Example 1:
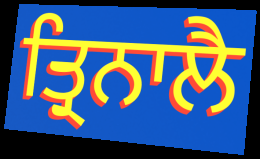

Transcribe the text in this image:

ਤ੍ਰਿਨਾਲੈ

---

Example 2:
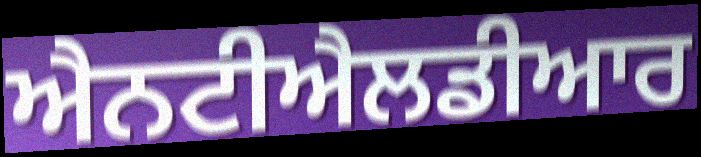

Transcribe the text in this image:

ਐਨਟੀਐਲਡੀਆਰ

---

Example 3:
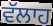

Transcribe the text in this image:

ਵੱਲਾਹ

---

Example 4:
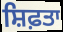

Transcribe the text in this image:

ਸ਼ਿਫ਼ਤਾ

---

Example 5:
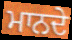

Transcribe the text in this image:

ਮਾਨਦੇ